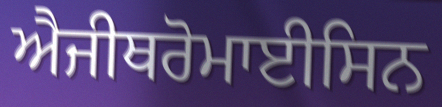
ਐਜੀਥਰੋਮਾਈਸਿਨ